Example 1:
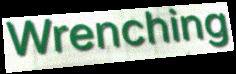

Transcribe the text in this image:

Wrenching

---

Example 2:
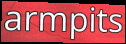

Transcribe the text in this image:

armpits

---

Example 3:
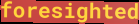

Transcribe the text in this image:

foresighted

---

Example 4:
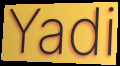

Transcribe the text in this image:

Yadi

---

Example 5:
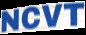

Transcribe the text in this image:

NCVT